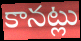
కానట్లు